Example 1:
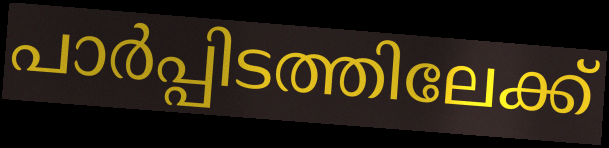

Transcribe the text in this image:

പാർപ്പിടത്തിലേക്ക്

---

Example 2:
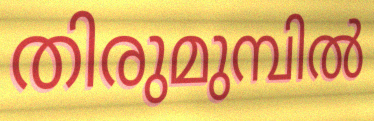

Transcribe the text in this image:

തിരുമുമ്പിൽ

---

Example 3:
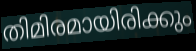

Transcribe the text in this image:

തിമിരമായിരിക്കും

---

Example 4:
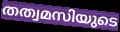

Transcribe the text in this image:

തത്വമസിയുടെ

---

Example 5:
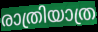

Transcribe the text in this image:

രാത്രിയാത്ര